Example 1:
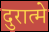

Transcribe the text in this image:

दुरात्मे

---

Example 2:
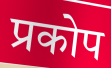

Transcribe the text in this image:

प्रकोप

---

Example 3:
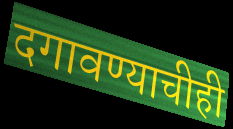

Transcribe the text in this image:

दगावण्याचीही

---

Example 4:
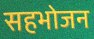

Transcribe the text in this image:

सहभोजन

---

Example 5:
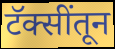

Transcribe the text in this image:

टॅक्सींतून